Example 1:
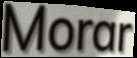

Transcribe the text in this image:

Morar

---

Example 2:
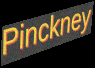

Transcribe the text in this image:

Pinckney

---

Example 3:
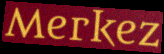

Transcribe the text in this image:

Merkez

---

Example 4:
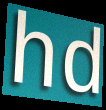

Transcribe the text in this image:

hd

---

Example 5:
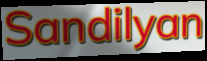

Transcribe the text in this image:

Sandilyan